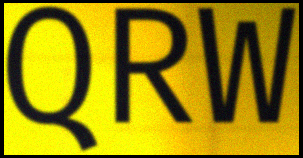
QRW